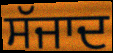
ਸੱਜਾਦ